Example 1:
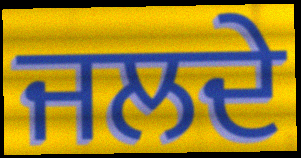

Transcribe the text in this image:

ਜਲਦੇ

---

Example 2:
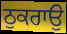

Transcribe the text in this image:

ਠੁਕਰਾਉ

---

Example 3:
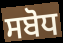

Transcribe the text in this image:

ਸਬੋਧ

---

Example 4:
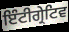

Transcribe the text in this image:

ਇੰਟੀਗ੍ਰੇਟਿਵ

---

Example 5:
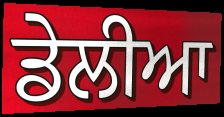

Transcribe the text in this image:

ਡੇਲੀਆ